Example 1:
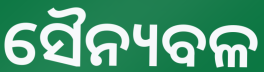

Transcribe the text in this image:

ସୈନ୍ୟବଳ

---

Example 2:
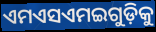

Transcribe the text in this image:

ଏମଏସଏମଇଗୁଡ଼ିକୁ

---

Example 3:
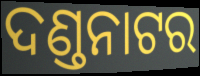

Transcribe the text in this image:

ଦଣ୍ଡନାଟର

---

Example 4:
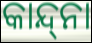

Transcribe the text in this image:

କାନ୍ଦ୍‌ନା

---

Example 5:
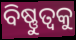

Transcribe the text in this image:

ବିଷ୍ଣୁତ୍ୱକୁ